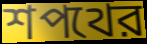
শপথের